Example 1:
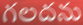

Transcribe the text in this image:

గలదను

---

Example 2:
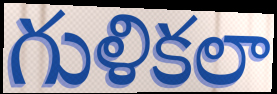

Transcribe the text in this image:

గుళికలా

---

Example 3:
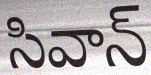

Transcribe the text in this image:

సివాన్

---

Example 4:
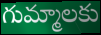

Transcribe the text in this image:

గుమ్మాలకు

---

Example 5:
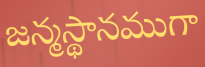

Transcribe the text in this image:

జన్మస్థానముగా